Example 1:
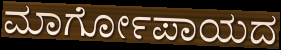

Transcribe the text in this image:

ಮಾರ್ಗೋಪಾಯದ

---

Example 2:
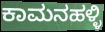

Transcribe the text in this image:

ಕಾಮನಹಳ್ಳಿ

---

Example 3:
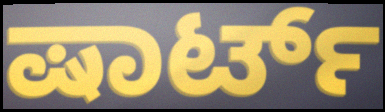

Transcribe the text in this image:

ಷಾರ್ಟ್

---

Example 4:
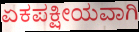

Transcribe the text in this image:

ಏಕಪಕ್ಷೀಯವಾಗಿ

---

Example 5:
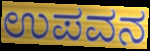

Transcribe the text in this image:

ಉಪವನ